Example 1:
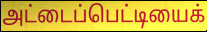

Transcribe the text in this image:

அட்டைப்பெட்டியைக்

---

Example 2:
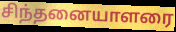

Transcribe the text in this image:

சிந்தனையாளரை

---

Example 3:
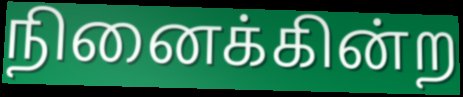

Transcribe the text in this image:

நினைக்கின்ற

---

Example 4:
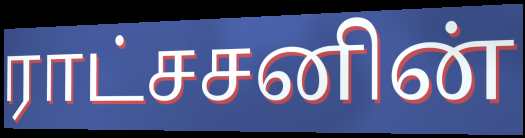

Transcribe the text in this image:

ராட்சசனின்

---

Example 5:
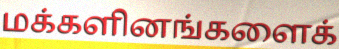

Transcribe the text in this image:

மக்களினங்களைக்